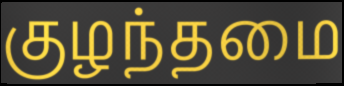
குழந்தமை